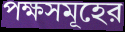
পক্ষসমূহের